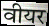
वीयर